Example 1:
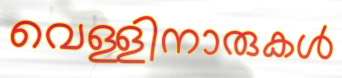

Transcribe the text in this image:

വെള്ളിനാരുകൾ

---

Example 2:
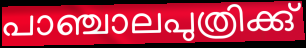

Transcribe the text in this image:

പാഞ്ചാലപുത്രിക്കു്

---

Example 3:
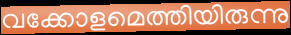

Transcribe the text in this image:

വക്കോളമെത്തിയിരുന്നു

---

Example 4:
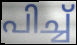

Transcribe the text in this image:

പിച്ച്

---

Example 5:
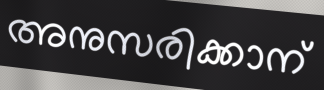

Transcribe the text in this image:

അനുസരിക്കാന്